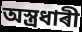
অস্ত্ৰধাৰী